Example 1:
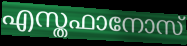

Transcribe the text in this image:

എസ്തഫാനോസ്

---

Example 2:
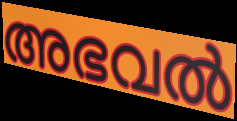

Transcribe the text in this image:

അഭവൽ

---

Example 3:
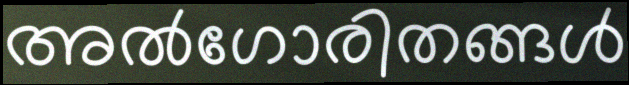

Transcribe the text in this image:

അൽഗോരിതങ്ങൾ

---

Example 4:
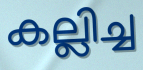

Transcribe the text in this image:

കല്ലിച്ച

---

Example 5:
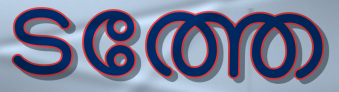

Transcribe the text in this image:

ടത്തേ